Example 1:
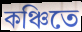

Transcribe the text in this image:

কঞ্চিতে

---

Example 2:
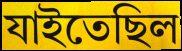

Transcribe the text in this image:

যাইতেছিল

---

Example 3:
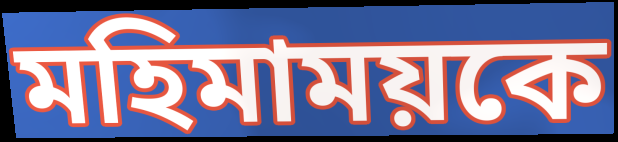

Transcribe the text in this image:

মহিমাময়কে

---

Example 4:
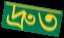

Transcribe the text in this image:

দ্রুত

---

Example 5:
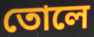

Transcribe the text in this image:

তোলে